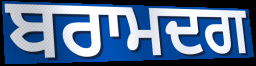
ਬਰਾਮਦਗ